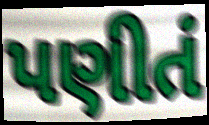
પણીતં